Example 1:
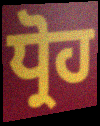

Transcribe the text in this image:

ਧ੍ਰੋਹ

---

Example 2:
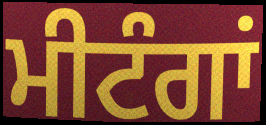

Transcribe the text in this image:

ਮੀਟੰਗਾਂ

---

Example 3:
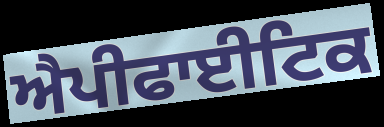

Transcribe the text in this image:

ਐਪੀਫਾਈਟਿਕ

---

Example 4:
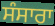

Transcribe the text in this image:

ਸੰਸਾਰਾ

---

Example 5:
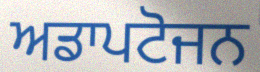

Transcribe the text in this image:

ਅਡਾਪਟੋਜਨ